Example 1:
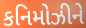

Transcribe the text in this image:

કનિમોઝીને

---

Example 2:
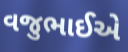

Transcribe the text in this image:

વજુભાઈએ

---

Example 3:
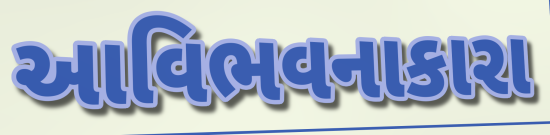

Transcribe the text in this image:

આવિભવનાકારા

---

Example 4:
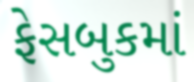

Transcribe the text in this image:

ફેસબુકમાં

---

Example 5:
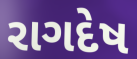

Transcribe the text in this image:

રાગદેષ